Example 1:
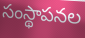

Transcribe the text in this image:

సంస్థాపనల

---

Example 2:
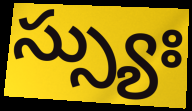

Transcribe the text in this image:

స్స్యుః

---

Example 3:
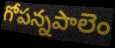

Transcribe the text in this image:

గోపన్నపాలెం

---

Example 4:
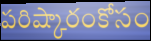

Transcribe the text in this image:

పరిష్కారంకోసం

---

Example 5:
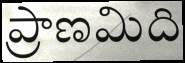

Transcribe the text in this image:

ప్రాణమిది